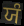
ਯੰ